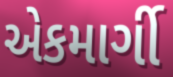
એકમાર્ગી